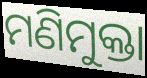
ମଣିମୁକ୍ତା